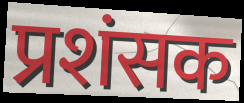
प्रशंसक